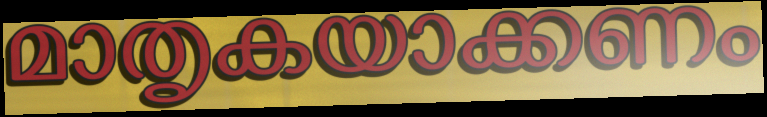
മാതൃകയാക്കണം